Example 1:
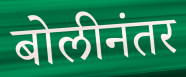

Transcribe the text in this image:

बोलीनंतर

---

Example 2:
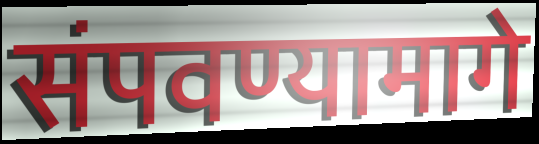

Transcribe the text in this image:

संपवण्यामागे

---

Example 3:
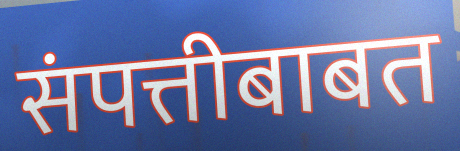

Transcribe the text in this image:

संपत्तीबाबत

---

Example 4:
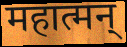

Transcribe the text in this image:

महात्मन्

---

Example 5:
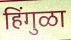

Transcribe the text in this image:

हिंगुळा